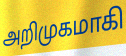
அறிமுகமாகி